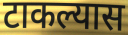
टाकल्यास